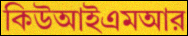
কিউআইএমআর